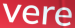
vere